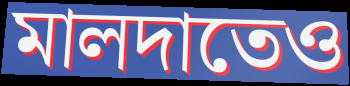
মালদাতেও